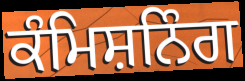
ਕੰਮਿਸ਼ਨਿੰਗ